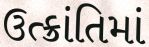
ઉત્ક્રાંતિમાં